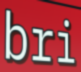
bri